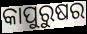
କାପୁରୁଷର